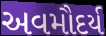
અવમૌદર્ય